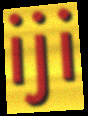
iji